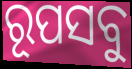
ରୂପସବୁ